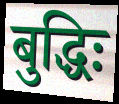
बुद्धिः